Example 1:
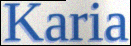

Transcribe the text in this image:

Karia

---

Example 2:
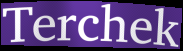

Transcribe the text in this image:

Terchek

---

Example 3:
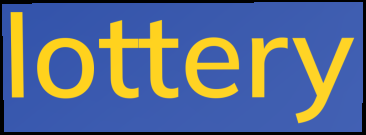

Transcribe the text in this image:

lottery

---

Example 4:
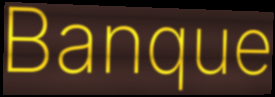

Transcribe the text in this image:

Banque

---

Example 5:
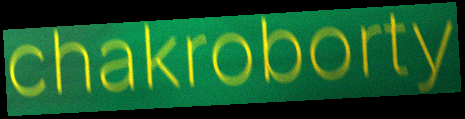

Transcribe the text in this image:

chakroborty